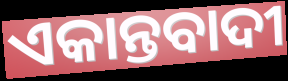
ଏକାନ୍ତବାଦୀ